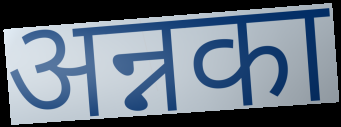
अन्नका